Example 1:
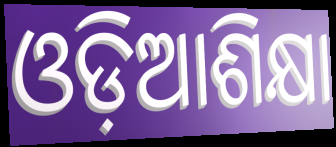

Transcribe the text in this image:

ଓଡ଼ିଆଶିକ୍ଷା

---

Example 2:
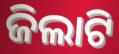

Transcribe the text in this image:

ଜିଲାଟି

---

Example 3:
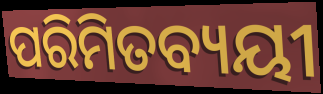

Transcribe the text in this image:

ପରିମିତବ୍ୟୟୀ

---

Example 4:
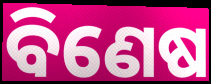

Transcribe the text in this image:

ବିଣେଷ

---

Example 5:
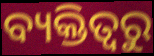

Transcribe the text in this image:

ବ୍ୟକ୍ତିତ୍ୱରୁ